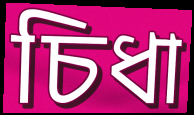
চিধা